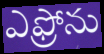
ఎఫ్రోను